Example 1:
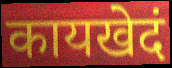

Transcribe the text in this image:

कायखेदं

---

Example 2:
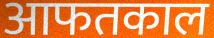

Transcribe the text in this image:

आफतकाल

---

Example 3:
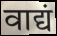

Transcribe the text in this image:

वाद्यं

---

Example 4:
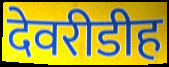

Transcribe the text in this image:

देवरीडीह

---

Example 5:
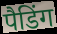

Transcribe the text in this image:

पैडिंग